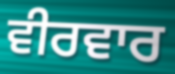
ਵੀਰਵਾਰ